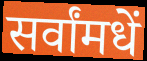
सर्वांमधें